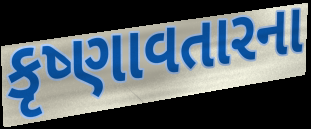
કૃષ્ણાવતારના